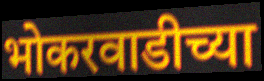
भोकरवाडीच्या